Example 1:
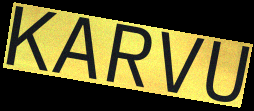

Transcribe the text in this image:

KARVU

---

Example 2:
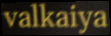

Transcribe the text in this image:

valkaiya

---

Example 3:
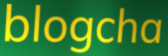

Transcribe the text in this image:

blogcha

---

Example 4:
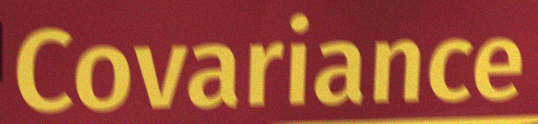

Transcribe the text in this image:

Covariance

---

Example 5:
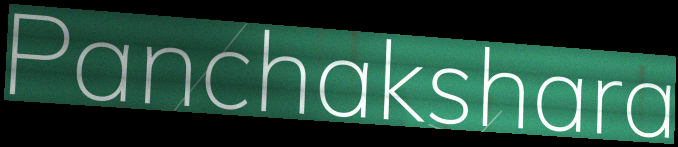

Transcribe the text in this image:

Panchakshara